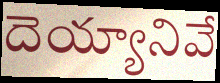
దెయ్యానివే